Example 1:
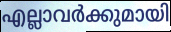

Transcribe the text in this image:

എല്ലാവർക്കുമായി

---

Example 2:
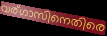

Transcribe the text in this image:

വര്ഗാസിനെതിരെ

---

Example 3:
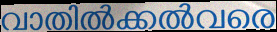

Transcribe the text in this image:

വാതിൽക്കൽവരെ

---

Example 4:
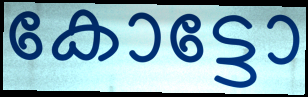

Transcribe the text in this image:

കോട്ടോ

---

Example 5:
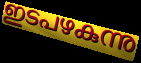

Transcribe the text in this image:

ഇടപഴകുന്നു